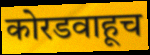
कोरडवाहूच